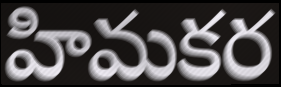
హిమకర